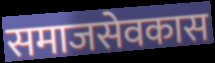
समाजसेवकास